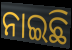
ନାଇଛି